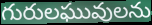
గురులఘువులను